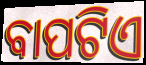
ବାପଟିଏ